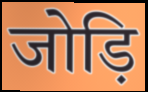
जोड़ि